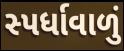
સ્પર્ધાવાળું